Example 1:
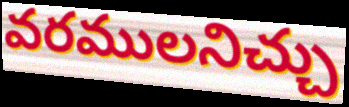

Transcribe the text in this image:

వరములనిచ్చు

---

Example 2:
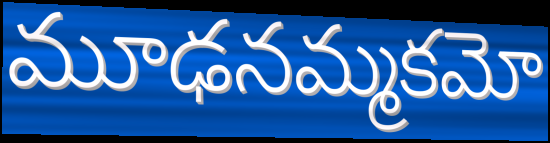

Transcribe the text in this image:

మూఢనమ్మకమో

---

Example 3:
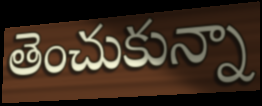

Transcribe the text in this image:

తెంచుకున్నా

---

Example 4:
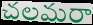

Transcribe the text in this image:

చలమరా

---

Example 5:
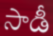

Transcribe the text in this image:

సాడీ